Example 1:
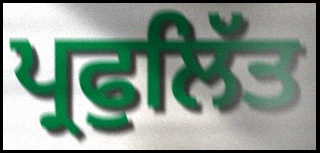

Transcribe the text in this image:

ਪ੍ਰਫੁਲਿੱਤ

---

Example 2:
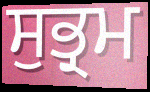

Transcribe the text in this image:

ਸੁਭ੍ਰਮ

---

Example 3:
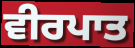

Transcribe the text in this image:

ਵੀਰਪਾਤ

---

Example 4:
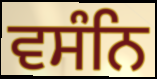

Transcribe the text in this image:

ਵਸੰਨਿ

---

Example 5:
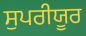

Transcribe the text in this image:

ਸੁਪਰੀਯੂਰ